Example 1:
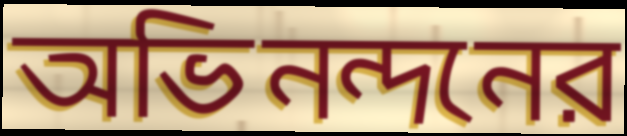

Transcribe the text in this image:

অভিনন্দনের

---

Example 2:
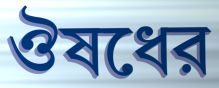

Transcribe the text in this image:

ঔষধের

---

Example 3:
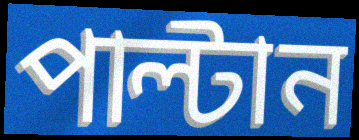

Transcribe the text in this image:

পাল্টান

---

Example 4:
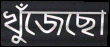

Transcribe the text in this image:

খুঁজেছো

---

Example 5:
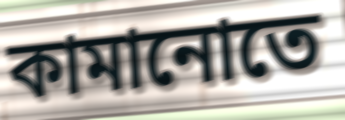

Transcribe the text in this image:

কামানোতে